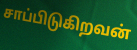
சாப்பிடுகிறவன்